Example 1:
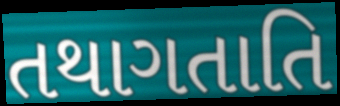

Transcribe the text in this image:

તથાગતાતિ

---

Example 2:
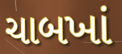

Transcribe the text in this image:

ચાબખાં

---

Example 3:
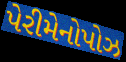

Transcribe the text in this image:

પેરીમેનોપોઝ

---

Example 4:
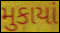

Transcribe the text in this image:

મુકાયાં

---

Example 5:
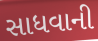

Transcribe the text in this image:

સાધવાની